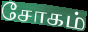
சோகம்